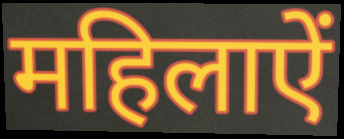
महिलाऐं